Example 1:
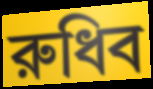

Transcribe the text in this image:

রুধিব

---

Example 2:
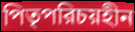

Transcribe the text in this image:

পিতৃপরিচয়হীন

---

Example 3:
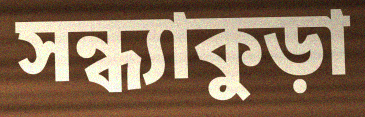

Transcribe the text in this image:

সন্ধ্যাকুড়া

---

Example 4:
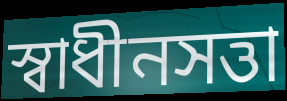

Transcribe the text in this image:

স্বাধীনসত্তা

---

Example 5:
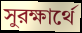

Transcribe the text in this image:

সুরক্ষার্থে